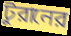
টুরানের